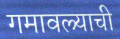
गमावल्याची